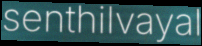
senthilvayal